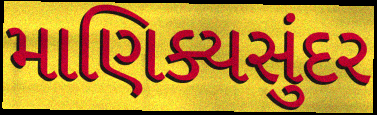
માણિક્યસુંદર